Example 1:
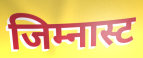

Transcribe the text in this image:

जिम्नास्ट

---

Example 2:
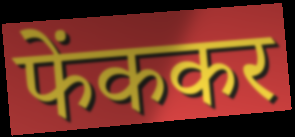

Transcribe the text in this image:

फेंककर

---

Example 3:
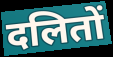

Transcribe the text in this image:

दलितों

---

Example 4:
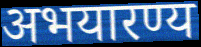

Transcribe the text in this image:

अभयारण्य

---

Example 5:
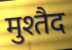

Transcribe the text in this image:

मुश्तैद